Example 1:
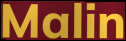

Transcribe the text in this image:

Malin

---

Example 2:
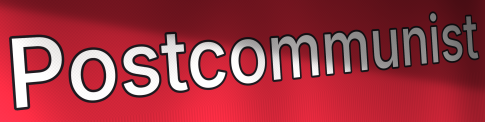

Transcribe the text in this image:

Postcommunist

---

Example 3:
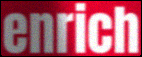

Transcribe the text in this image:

enrich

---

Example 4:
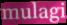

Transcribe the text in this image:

mulagi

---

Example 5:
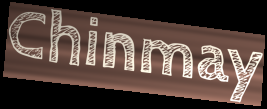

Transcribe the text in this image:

Chinmay